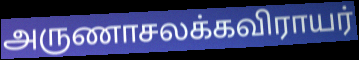
அருணாசலக்கவிராயர்